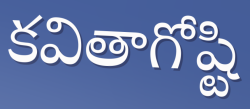
కవితాగోష్టి